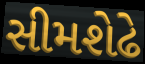
સીમશેઢે